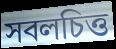
সবলচিত্ত